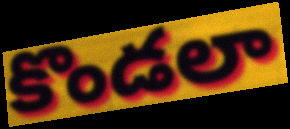
కొండలా